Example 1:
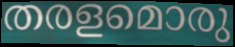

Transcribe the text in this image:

തരളമൊരു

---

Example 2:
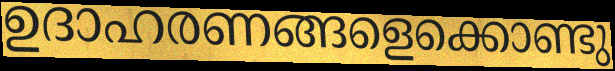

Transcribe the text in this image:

ഉദാഹരണങ്ങളെക്കൊണ്ടു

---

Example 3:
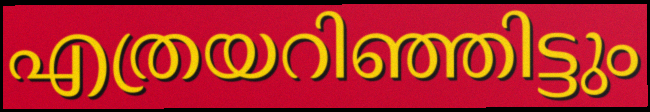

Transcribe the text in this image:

എത്രയറിഞ്ഞിട്ടും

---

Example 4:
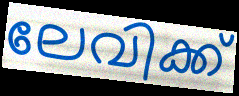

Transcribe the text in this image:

ലേവിക്ക്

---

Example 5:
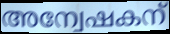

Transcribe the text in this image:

അന്വേഷകന്